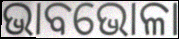
ଭାବଭୋଳା